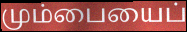
மும்பையைப்